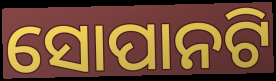
ସୋପାନଟି